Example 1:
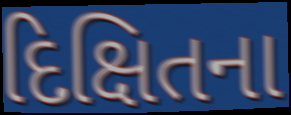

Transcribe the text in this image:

દિક્ષિતના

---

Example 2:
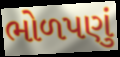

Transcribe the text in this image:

ભોળપણું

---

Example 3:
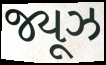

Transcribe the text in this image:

જ્યૂઝ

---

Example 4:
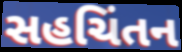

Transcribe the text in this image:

સહચિંતન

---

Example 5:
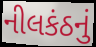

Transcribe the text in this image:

નીલકંઠનું